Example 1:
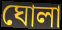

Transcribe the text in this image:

ঘোলা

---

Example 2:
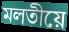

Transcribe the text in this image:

মলতীয়ে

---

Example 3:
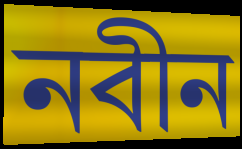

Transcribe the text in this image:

নবীন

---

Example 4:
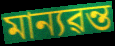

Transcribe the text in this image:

মান্যৱন্ত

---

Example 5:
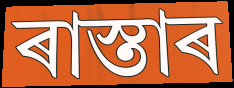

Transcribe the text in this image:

ৰাস্তাৰ